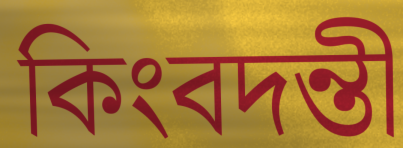
কিংবদন্তী